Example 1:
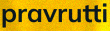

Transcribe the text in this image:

pravrutti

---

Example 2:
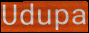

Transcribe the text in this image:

Udupa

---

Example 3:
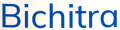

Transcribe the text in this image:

Bichitra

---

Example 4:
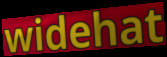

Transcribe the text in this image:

widehat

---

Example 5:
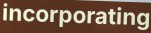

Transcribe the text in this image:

incorporating